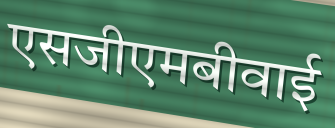
एसजीएमबीवाई